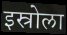
इस्रोला